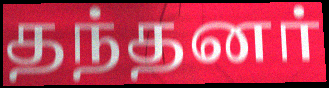
தந்தனர்